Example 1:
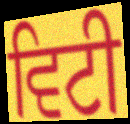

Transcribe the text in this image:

ਵਿਟੀ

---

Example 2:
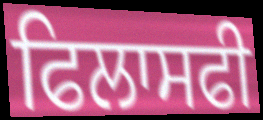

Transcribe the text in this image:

ਫਿਲਾਸਫੀ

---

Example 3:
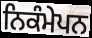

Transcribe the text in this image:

ਨਿਕੰਮੇਪਨ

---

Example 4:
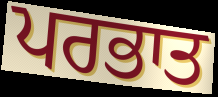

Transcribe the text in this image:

ਪਰਭਾਤ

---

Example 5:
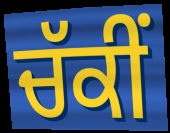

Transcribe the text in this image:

ਚੱਕੀਂ